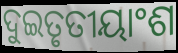
ଦୁଇତୃତୀୟାଂଶ